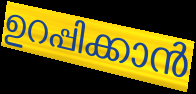
ഉറപ്പിക്കാൻ